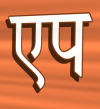
एप